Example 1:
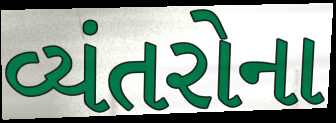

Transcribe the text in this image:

વ્યંતરોના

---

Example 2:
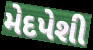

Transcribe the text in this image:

મેદપેશી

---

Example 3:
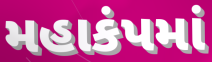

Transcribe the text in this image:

મહાકંપમાં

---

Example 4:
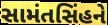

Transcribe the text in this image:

સામંતસિંહને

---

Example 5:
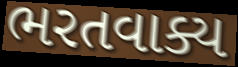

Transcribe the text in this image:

ભરતવાક્ય